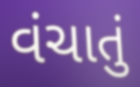
વંચાતું